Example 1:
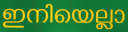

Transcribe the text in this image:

ഇനിയെല്ലാ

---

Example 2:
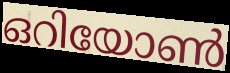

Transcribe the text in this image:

ഒറിയോൺ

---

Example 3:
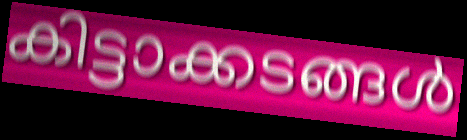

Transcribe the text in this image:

കിട്ടാക്കടങ്ങൾ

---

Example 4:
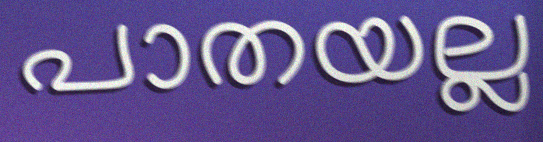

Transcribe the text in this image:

പാതയല്ല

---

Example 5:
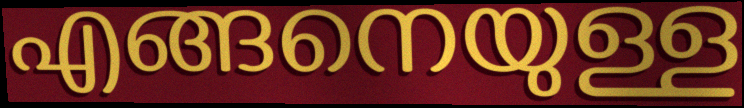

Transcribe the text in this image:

എങ്ങനെയുള്ള